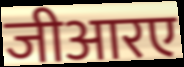
जीआरए